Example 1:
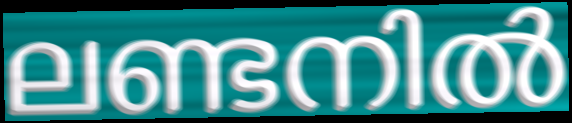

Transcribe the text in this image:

ലണ്ടനിൽ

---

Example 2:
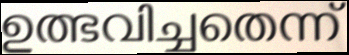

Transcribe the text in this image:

ഉത്ഭവിച്ചതെന്ന്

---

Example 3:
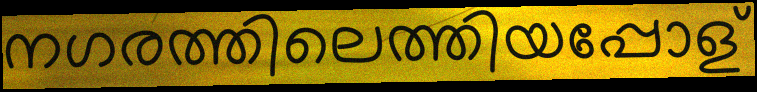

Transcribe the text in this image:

നഗരത്തിലെത്തിയപ്പോള്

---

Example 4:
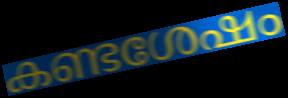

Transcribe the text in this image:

കണ്ടശേഷം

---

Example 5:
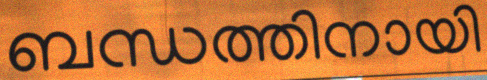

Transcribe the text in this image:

ബന്ധത്തിനായി